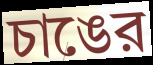
চাঙের